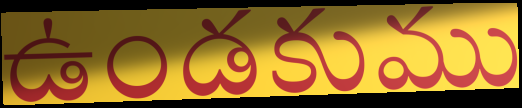
ఉండకుము